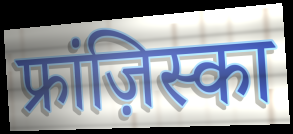
फ्रांज़िस्का